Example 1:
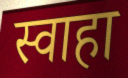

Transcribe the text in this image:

स्वाहा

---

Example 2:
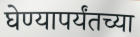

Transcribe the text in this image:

घेण्यापर्यंतच्या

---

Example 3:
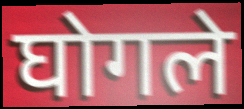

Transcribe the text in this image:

घोगले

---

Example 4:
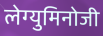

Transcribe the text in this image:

लेग्युमिनोजी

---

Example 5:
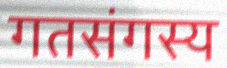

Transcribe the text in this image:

गतसंगस्य